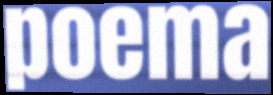
poema